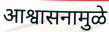
आश्वासनामुळे